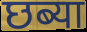
छब्या